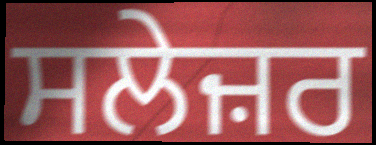
ਸਲੇਜ਼ਰ